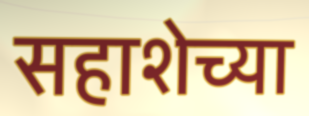
सहाशेच्या